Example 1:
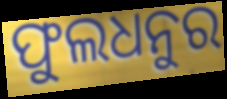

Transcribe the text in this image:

ଫୁଲଧନୁର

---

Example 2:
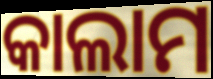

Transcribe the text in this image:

କାଲାମ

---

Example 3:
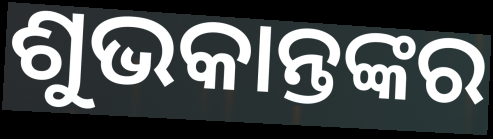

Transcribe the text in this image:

ଶୁଭକାନ୍ତଙ୍କର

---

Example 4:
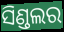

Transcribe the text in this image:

ସିଣ୍ଡଲର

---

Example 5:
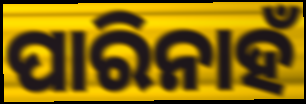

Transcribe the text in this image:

ପାରିନାହଁ